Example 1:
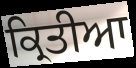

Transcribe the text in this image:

ਕ੍ਰਿਤੀਆ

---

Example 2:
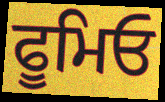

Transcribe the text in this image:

ਫੂਮਿਓ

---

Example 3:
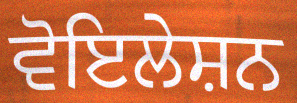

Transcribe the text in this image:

ਵੋਇਲੇਸ਼ਨ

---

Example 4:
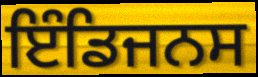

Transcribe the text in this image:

ਇੰਡਿਜਨਸ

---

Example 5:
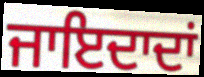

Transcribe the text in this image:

ਜਾਇਦਾਦਾਂ